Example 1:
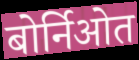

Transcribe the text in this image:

बोर्निओत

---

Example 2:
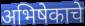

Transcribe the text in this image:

अभिषेकाचे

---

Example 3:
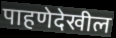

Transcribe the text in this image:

पाहणेदेखील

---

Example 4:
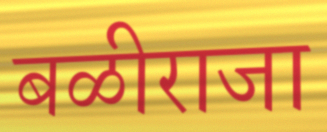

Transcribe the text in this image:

बळीराजा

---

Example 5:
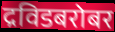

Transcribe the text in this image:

द्रविडबरोबर